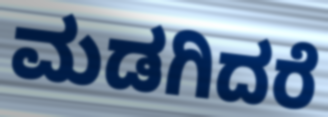
ಮಡಗಿದರೆ